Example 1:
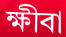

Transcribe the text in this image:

ক্ষীবা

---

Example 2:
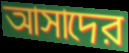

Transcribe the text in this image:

আসাদের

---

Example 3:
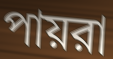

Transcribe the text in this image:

পায়রা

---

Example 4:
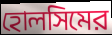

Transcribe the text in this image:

হোলসিমের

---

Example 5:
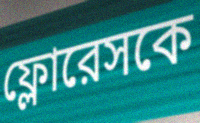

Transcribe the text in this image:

ফ্লোরেসকে